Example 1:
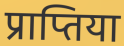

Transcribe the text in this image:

प्राप्तिया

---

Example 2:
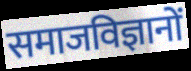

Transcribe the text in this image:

समाजविज्ञानों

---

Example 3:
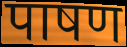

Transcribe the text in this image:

पाषण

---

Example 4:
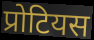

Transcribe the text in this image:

प्रोटियस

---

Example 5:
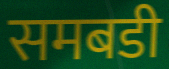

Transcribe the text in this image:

समबडी